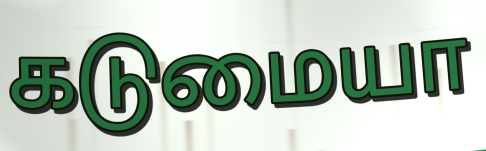
கடுமையா